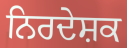
ਨਿਰਦੇਸ਼ਕ